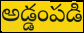
అడ్డంపడి